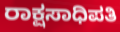
ರಾಕ್ಷಸಾಧಿಪತಿ